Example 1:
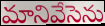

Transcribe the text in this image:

మానివేసెను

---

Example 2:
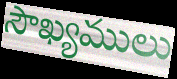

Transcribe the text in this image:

సౌఖ్యములు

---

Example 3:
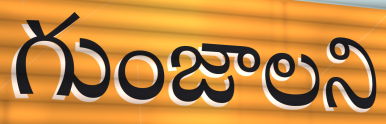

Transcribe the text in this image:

గుంజాలని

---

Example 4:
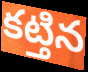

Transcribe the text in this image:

కట్తిన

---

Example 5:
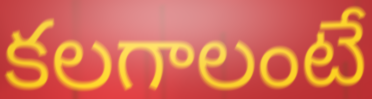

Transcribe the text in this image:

కలగాలంటే